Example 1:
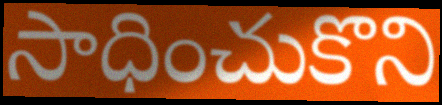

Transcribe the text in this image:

సాధించుకొని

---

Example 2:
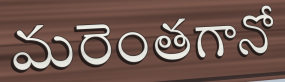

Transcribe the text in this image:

మరెంతగానో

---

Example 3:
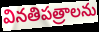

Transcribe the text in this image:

వినతిపత్రాలను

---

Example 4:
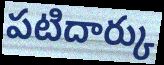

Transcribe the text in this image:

పటిదార్కు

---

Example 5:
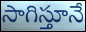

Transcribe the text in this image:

సాగిస్తూనే